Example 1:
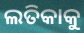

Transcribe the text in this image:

ଲତିକାକୁ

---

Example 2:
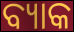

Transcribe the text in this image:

ବ୍ୟାକ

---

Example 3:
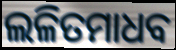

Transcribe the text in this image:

ଲଳିତମାଧବ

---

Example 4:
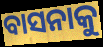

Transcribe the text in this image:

ବାସନାକୁ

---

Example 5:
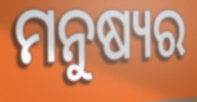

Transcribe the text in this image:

ମନୁଷ୍ୟର